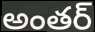
అంతర్